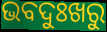
ଭବଦୁଃଖରୁ